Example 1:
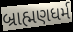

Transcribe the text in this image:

બ્રાહ્મણધર્મ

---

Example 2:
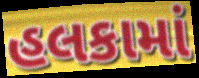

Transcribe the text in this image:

હલકામાં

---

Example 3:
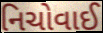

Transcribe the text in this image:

નિચોવાઈ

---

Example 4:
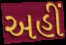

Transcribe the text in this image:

અહીં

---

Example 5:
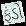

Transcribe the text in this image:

ફંડો